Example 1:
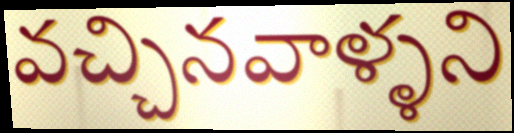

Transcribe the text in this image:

వచ్చినవాళ్ళని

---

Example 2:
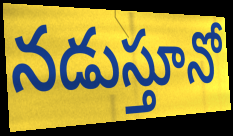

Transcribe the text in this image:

నడుస్తూనో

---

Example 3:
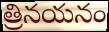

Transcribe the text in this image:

త్రినయనం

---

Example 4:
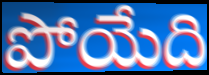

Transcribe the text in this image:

పోయేది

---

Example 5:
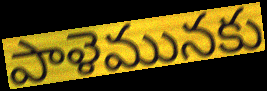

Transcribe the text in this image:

పాళెమునకు